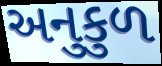
અનુકુળ